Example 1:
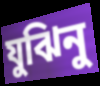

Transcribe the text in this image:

যুঝিনু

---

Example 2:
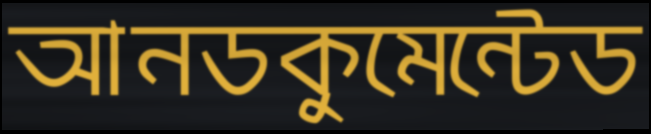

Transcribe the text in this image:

আনডকুমেন্টেড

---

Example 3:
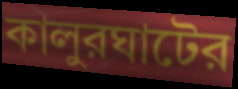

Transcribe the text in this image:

কালুরঘাটের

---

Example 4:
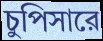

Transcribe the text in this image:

চুপিসারে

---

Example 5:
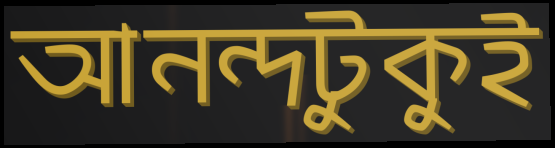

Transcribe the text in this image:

আনন্দটুকুই